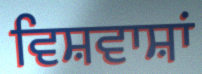
ਵਿਸ਼ਵਾਸ਼ਾਂ